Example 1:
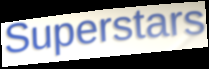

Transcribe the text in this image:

Superstars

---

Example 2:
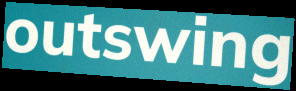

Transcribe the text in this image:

outswing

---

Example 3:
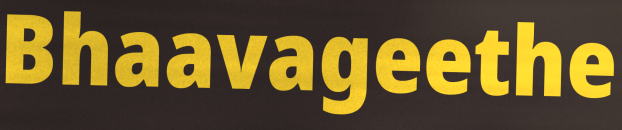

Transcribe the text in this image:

Bhaavageethe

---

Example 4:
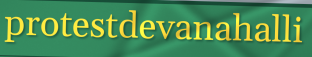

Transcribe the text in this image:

protestdevanahalli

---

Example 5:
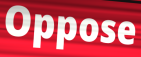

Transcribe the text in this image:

Oppose